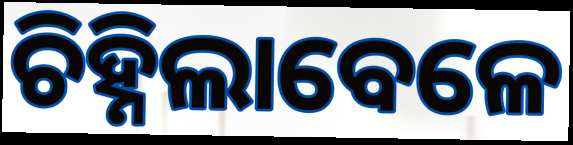
ଚିହ୍ନିଲାବେଳେ